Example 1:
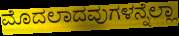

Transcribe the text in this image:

ಮೊದಲಾದವುಗಳನ್ನೆಲ್ಲಾ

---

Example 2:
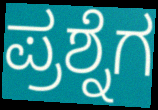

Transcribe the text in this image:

ಪ್ರಶ್ನೆಗ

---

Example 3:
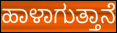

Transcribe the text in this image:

ಹಾಳಾಗುತ್ತಾನೆ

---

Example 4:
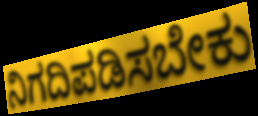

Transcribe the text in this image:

ನಿಗದಿಪಡಿಸಬೇಕು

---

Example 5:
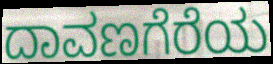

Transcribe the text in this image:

ದಾವಣಗೆರೆಯ